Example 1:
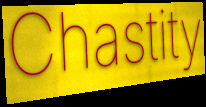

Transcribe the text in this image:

Chastity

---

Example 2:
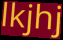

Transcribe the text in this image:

lkjhj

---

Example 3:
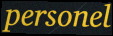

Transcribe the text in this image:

personel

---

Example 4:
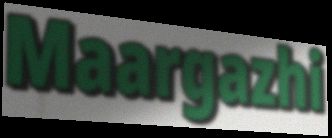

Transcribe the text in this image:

Maargazhi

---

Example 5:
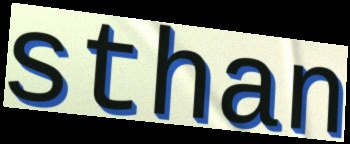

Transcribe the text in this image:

sthan